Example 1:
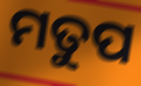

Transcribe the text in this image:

ମତୁପ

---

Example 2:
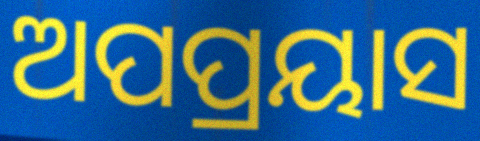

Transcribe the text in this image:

ଅପପ୍ରୟାସ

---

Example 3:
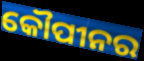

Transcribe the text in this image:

କୌପୀନର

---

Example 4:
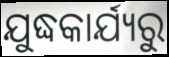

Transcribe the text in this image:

ଯୁଦ୍ଧକାର୍ଯ୍ୟରୁ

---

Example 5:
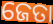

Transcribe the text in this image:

ଜେତା